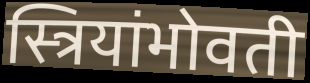
स्त्रियांभोवती